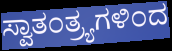
ಸ್ವಾತಂತ್ರ್ಯಗಳಿಂದ